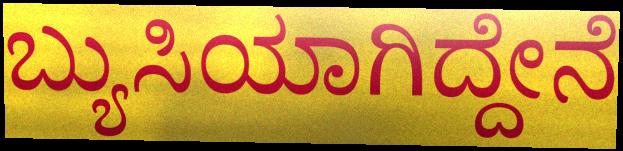
ಬ್ಯುಸಿಯಾಗಿದ್ದೇನೆ